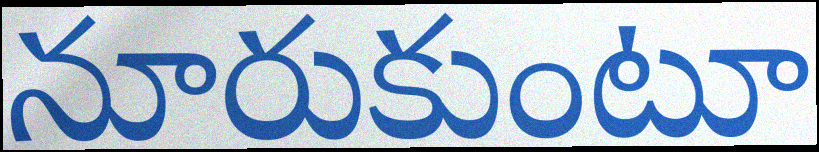
నూరుకుంటూ